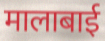
मालाबाई